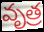
వృత్ర